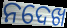
ନଦେଖ